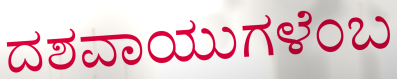
ದಶವಾಯುಗಳೆಂಬ